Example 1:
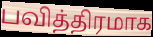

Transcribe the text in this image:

பவித்திரமாக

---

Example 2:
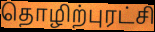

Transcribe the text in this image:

தொழிற்புரட்சி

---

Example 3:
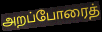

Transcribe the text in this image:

அறப்போரைத்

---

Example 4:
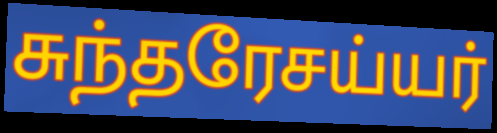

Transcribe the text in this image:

சுந்தரேசய்யர்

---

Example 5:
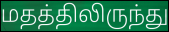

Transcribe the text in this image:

மதத்திலிருந்து